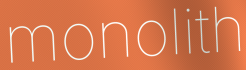
monolith